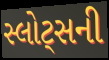
સ્લોટ્સની